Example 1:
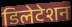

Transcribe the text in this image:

डिलेटेशन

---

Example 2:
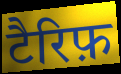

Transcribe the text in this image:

टैरिफ़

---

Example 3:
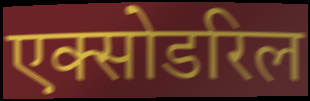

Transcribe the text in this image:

एक्सोडरिल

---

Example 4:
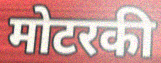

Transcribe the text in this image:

मोटरकी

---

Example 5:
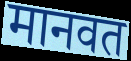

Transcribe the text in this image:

मानवत